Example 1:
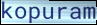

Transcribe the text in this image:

kopuram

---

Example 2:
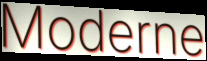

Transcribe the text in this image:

Moderne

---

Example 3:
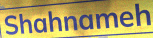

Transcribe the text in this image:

Shahnameh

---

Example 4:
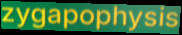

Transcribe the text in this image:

zygapophysis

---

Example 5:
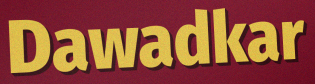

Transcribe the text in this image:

Dawadkar